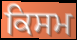
ਕਿਸਮ